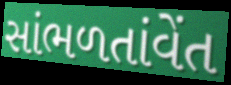
સાંભળતાંવેંત